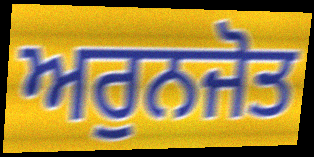
ਅਰੁਨਜੋਤ